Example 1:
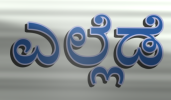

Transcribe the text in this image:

ಎಲ್ಲೆಡೆ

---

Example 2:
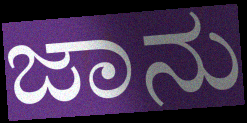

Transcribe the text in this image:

ಜಾನು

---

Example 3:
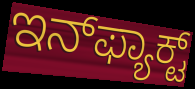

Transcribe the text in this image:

ಇನ್‌ಫ್ಯಾಕ್ಟ್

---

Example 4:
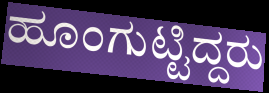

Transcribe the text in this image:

ಹೂಂಗುಟ್ಟಿದ್ದರು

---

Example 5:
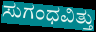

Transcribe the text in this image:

ಸುಗಂಧವಿತ್ತು